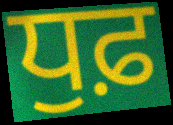
ਧੁਫ਼